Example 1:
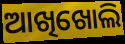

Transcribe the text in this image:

ଆଖିଖୋଲି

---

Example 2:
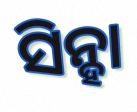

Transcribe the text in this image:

ସିନ୍ହା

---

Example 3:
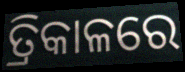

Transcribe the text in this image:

ତ୍ରିକାଳରେ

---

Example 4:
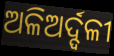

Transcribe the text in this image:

ଅଳିଅର୍ଦ୍ଦଳୀ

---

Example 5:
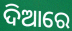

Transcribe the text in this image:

ଦିଆରେ